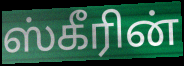
ஸ்கீரின்